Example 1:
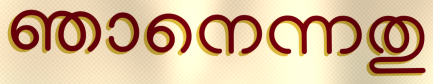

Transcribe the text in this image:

ഞാനെന്നതു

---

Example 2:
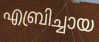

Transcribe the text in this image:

എബ്രിച്ചായ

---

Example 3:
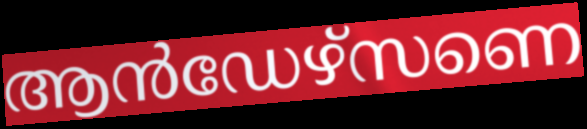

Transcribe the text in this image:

ആൻഡേഴ്സണെ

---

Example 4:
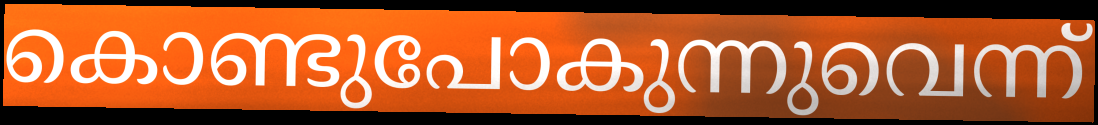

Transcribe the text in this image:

കൊണ്ടുപോകുന്നുവെന്ന്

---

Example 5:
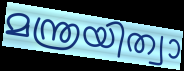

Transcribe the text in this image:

മന്ത്രയിത്വാ